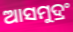
ଆସମୁଦ୍ରଂ